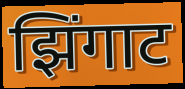
झिंगाट